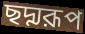
ছদ্মরূপ